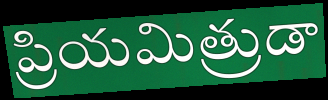
ప్రియమిత్రుడా